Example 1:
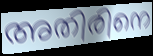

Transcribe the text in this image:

അതിരിനെ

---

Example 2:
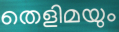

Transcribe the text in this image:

തെളിമയും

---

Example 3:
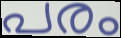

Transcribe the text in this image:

പരം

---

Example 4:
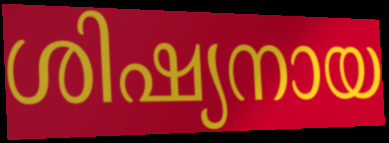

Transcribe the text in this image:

ശിഷ്യനായ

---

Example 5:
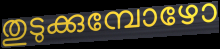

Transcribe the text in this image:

തുടുക്കുമ്പോഴോ